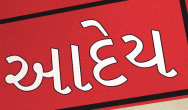
આદેય